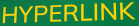
HYPERLINK